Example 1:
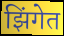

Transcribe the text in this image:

झिंगेत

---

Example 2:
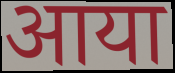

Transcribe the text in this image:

आया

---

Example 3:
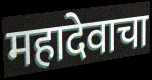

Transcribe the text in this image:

महादेवाचा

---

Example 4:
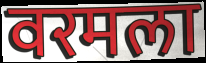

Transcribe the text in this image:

वरमला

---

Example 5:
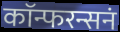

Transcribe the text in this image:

कॉन्फरन्सनं